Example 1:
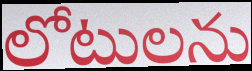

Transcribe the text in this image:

లోటులను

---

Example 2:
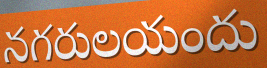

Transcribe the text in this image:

నగరులయందు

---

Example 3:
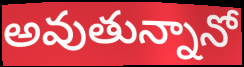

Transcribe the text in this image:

అవుతున్నానో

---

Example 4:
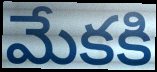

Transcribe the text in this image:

మేకకి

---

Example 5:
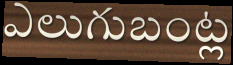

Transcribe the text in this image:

ఎలుగుబంట్ల